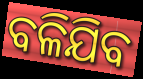
ବଳିଯିବ